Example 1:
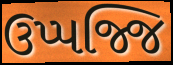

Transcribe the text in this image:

ઉપ્પજ્જિ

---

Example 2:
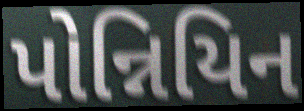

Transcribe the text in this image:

પોન્નિયિન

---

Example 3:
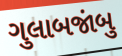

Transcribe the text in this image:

ગુલાબજાંબુ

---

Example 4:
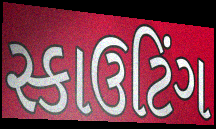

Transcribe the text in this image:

સ્કાઉટિંગ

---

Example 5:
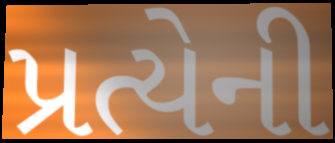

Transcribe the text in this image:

પ્રત્યેની